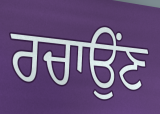
ਰਚਾਉਂਣ